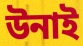
উনাই